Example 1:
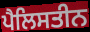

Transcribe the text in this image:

ਪੈਲਿਸਤੀਨ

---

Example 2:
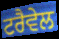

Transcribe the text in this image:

ਟਰੈਵੇਲ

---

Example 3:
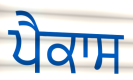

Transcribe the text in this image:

ਪੈਕਾਸ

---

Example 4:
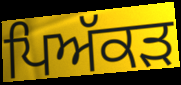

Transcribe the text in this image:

ਪਿਅੱਕੜ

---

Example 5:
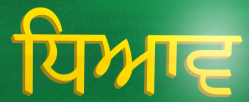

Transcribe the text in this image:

ਧਿਆਵ